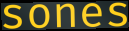
sones